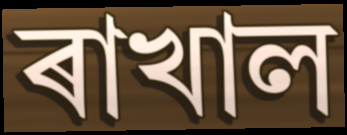
ৰাখাল